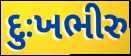
દુઃખભીરુ